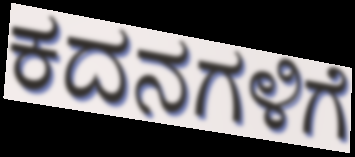
ಕದನಗಳಿಗೆ